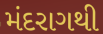
મંદરાગથી